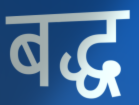
बद्ध